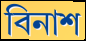
বিনাশ